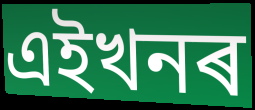
এইখনৰ